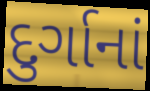
દુર્ગાનાં